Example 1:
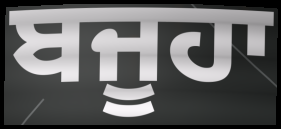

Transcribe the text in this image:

ਬਜੂਹਾ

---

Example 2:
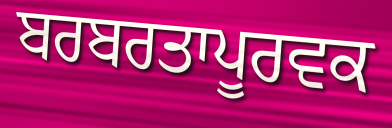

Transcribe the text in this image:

ਬਰਬਰਤਾਪੂਰਵਕ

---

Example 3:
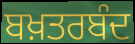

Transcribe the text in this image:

ਬਖ਼ਤਰਬੰਦ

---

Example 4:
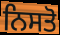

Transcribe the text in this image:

ਨਿਸਤੋ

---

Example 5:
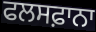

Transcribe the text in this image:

ਫਲਸਫ਼ਾਨਾ